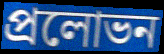
প্ৰলোভন